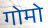
गोमो